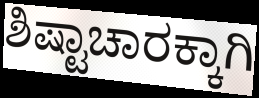
ಶಿಷ್ಟಾಚಾರಕ್ಕಾಗಿ